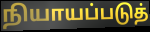
நியாயப்படுத்